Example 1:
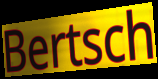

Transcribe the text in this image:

Bertsch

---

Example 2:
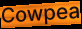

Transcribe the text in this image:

Cowpea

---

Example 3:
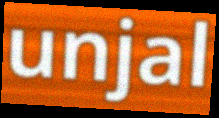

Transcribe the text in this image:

unjal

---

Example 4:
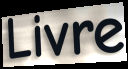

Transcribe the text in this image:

Livre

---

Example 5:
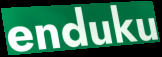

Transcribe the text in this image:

enduku